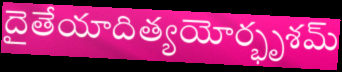
దైతేయాదిత్యయోర్భృశమ్